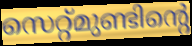
സെറ്റ്മുണ്ടിന്റെ